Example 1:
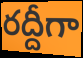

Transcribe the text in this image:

రద్దీగా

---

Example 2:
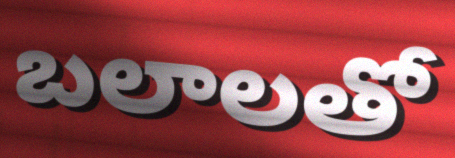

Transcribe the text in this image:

బలాలతో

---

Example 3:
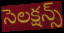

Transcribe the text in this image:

సెలక్షన్స్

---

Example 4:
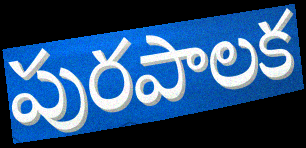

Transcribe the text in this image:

పురపాలక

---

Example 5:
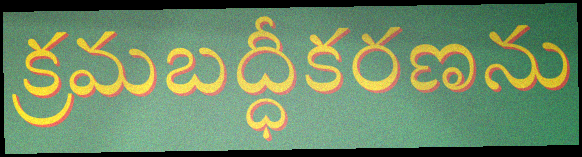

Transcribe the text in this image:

క్రమబద్ధీకరణను